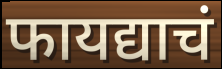
फायद्याचं